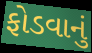
ફોડવાનું